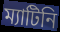
ম্যাটিনি